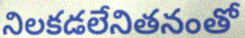
నిలకడలేనితనంతో